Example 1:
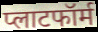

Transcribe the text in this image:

प्लाटफॉर्म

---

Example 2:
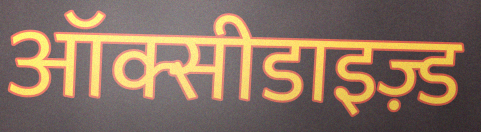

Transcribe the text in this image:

ऑक्सीडाइज़्ड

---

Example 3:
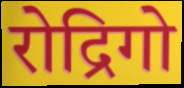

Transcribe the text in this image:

रोद्रिगो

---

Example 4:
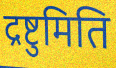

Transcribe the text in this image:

द्रष्टुमिति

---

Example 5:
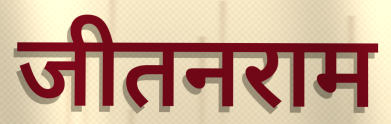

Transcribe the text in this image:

जीतनराम